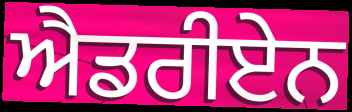
ਐਡਰੀਏਨ